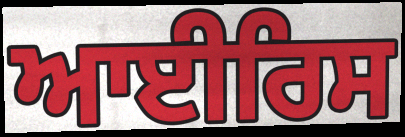
ਆਈਰਿਸ